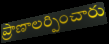
ప్రాణాలర్పించారు